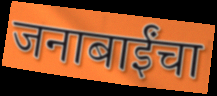
जनाबाईंचा